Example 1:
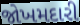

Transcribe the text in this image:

જોખમદારી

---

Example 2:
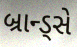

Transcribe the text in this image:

બ્રાન્ડ્સે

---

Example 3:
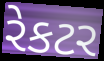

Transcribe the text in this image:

રેકટર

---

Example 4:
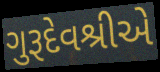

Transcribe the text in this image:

ગુરૂદેવશ્રીએ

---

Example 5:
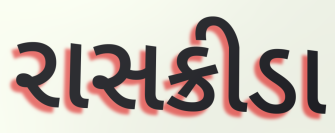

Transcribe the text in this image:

રાસક્રીડા